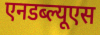
एनडब्ल्यूएस